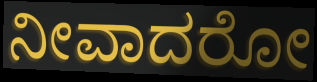
ನೀವಾದರೋ